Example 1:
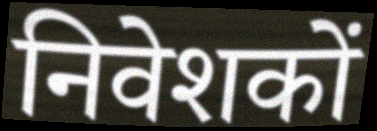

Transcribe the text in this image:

निवेशकों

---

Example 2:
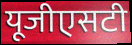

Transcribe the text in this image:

यूजीएसटी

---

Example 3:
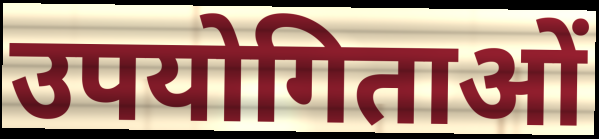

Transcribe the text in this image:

उपयोगिताओं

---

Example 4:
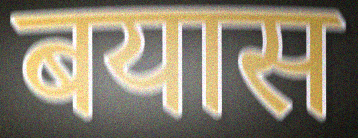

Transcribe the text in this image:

बयास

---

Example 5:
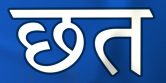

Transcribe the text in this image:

छत